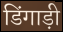
डिंगाड़ी